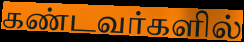
கண்டவர்களில்